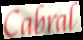
Cabral